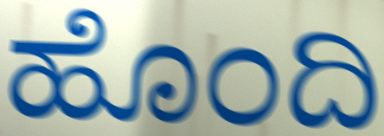
ಹೊಂದಿ